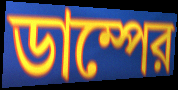
ডাম্পের